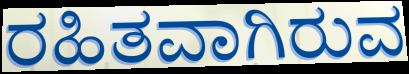
ರಹಿತವಾಗಿರುವ